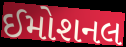
ઈમોશનલ